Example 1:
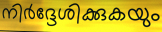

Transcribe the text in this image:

നിർദ്ദേശിക്കുകയും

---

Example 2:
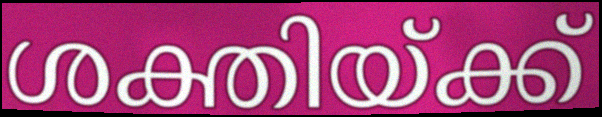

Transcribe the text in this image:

ശക്തിയ്ക്ക്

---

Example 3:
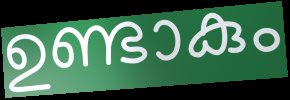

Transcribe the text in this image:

ഉണ്ടാകും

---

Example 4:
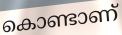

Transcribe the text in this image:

കൊണ്ടാണ്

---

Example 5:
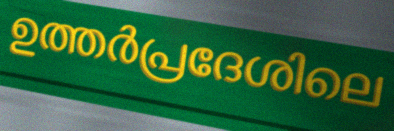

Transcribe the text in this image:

ഉത്തർപ്രദേശിലെ